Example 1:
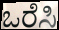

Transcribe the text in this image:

ಒರೆಸಿ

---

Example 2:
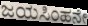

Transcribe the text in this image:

ಜಯಸಿಂಹನೇ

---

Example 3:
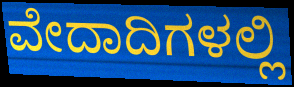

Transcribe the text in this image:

ವೇದಾದಿಗಳಲ್ಲಿ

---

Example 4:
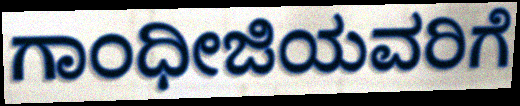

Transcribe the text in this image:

ಗಾಂಧೀಜಿಯವರಿಗೆ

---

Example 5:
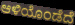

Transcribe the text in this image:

ಆಳಿಯೊಂಡೆದೆ